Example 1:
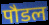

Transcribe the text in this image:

पौडल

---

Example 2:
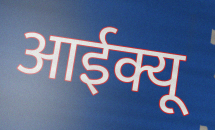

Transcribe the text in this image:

आईक्यू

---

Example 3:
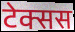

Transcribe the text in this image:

टेक्सस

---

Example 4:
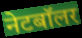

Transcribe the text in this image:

नेटबॉलर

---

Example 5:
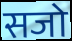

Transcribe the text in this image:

सजो